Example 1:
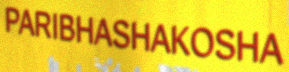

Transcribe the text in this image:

PARIBHASHAKOSHA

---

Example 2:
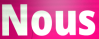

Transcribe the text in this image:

Nous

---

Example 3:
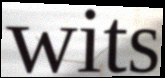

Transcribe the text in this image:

wits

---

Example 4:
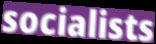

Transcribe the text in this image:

socialists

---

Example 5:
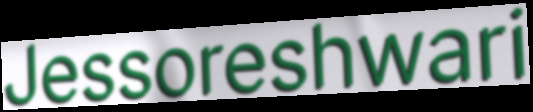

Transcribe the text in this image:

Jessoreshwari